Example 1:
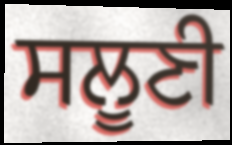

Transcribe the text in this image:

ਸਲੂਣੀ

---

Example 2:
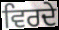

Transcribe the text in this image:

ਵਿਰਦੇ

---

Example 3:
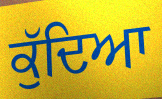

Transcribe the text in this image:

ਕੁੱਦਿਆ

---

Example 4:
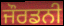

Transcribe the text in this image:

ਜੌਰਡਨੀ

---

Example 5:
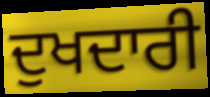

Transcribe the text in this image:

ਦੁਖਦਾਰੀ